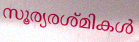
സൂര്യരശ്മികൾ